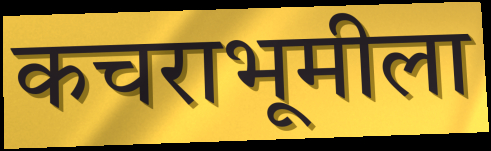
कचराभूमीला